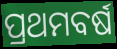
ପ୍ରଥମବର୍ଷ